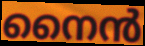
നൈൻ